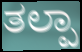
ತಲ್ಪಾ